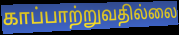
காப்பாற்றுவதில்லை